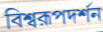
বিশ্বরূপদর্শন